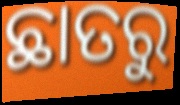
ଛାତରୁ